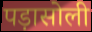
पड़ासोली